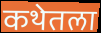
कथेतला